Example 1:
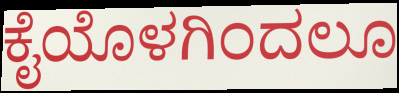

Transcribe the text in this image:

ಕೈಯೊಳಗಿಂದಲೂ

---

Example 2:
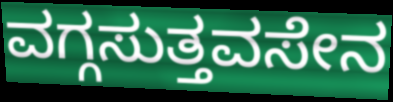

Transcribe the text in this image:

ವಗ್ಗಸುತ್ತವಸೇನ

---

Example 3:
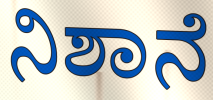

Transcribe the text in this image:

ನಿಶಾನೆ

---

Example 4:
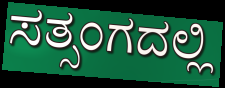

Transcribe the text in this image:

ಸತ್ಸಂಗದಲ್ಲಿ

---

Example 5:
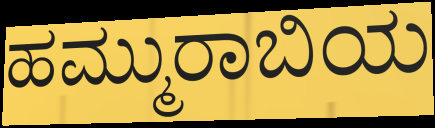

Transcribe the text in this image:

ಹಮ್ಮುರಾಬಿಯ